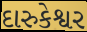
દારુકેશ્વર